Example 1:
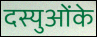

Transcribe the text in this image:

दस्युओंके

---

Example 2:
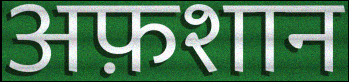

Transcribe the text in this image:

अफ़शान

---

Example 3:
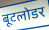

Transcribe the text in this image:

बूटलोडर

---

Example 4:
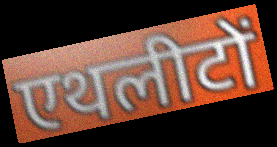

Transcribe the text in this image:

एथलीटों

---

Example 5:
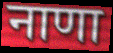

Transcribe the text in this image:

नाणा